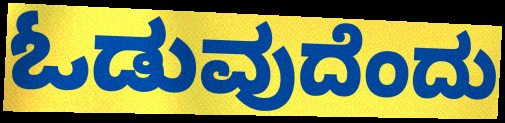
ಓಡುವುದೆಂದು